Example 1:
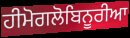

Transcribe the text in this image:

ਹੀਮੋਗਲੋਬਿਨੂਰੀਆ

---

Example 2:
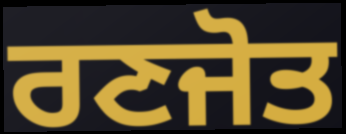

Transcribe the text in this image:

ਰਣਜੋਤ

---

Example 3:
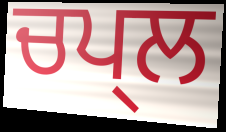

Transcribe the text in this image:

ਚਪ੍ਲ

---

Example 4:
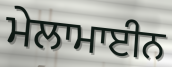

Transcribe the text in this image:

ਮੇਲਾਮਾਈਨ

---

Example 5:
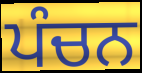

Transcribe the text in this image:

ਪੰਚਨ